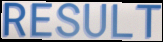
RESULT